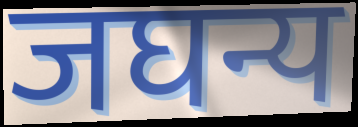
जघन्‍य